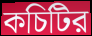
কচিটির